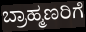
ಬ್ರಾಹ್ಮಣರಿಗೆ